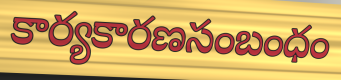
కార్యకారణసంబంధం